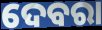
ଦେବରା